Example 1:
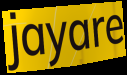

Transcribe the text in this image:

jayare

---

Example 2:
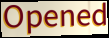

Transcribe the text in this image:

Opened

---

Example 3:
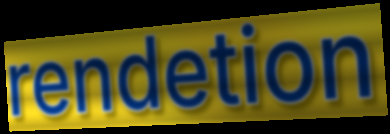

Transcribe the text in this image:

rendetion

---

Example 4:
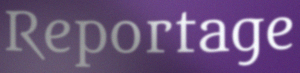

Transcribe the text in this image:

Reportage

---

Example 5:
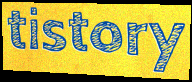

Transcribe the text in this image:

tistory